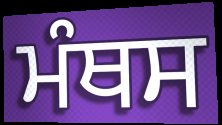
ਮੰਥਸ